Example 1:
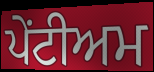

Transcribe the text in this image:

ਪੇਂਟੀਅਮ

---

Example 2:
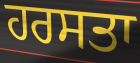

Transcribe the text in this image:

ਹਰਸਤਾ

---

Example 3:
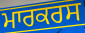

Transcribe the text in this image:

ਮਾਰਕਰਸ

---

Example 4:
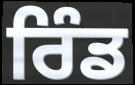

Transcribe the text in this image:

ਰਿੰਡ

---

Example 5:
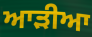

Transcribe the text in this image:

ਆੜੀਆ